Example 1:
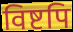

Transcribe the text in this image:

विष्टपि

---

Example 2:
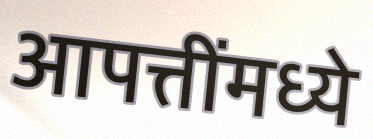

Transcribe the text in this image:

आपत्तींमध्ये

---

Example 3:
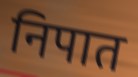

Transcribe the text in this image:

निपात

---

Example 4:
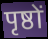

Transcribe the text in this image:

पृष्ठों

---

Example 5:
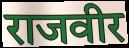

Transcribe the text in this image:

राजवीर